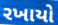
રખાયો